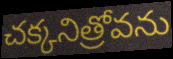
చక్కనిత్రోవను